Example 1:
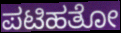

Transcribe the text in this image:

ಪಟಿಹತೋ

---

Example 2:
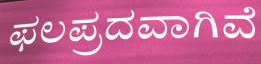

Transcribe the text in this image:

ಫಲಪ್ರದವಾಗಿವೆ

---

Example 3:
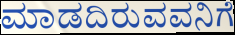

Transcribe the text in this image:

ಮಾಡದಿರುವವನಿಗೆ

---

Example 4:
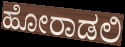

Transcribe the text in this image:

ಹೋರಾಡಲಿ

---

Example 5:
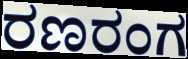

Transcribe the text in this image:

ರಣರಂಗ